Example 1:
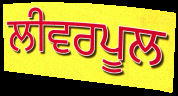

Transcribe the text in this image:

ਲੀਵਰਪੂਲ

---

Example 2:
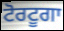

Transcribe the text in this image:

ਟੋਰਟੂਗਾ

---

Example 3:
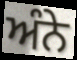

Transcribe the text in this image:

ਅੰਨੇ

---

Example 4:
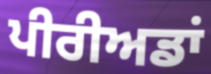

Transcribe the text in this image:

ਪੀਰੀਅਡਾਂ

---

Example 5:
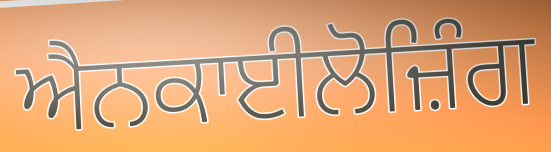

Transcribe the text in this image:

ਐਨਕਾਈਲੋਜ਼ਿੰਗ